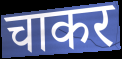
चाकर